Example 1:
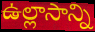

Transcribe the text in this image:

ఉల్లాసాన్ని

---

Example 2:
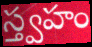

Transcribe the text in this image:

స్త్వహం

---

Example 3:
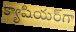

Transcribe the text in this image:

క్యాషియర్‌గా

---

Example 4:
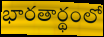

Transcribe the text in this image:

భారతార్థంలో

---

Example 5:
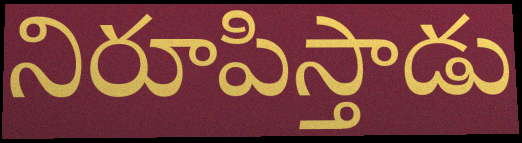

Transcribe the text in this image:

నిరూపిస్తాడు